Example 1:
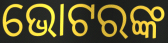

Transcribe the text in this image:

ଭୋଟରଙ୍କ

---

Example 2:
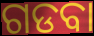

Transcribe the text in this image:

ଗଡବା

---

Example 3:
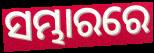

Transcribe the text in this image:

ସମ୍ଭାରରେ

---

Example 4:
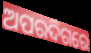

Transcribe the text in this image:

ଅପରଦିଗରେ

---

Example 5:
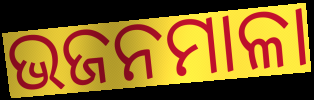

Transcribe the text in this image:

ଭଜନମାଳା